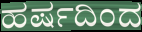
ಹರ್ಷದಿಂದ